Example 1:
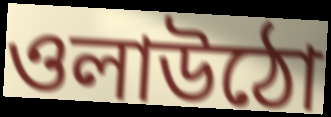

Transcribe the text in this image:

ওলাউঠো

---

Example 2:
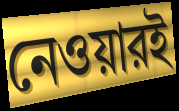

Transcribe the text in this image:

নেওয়ারই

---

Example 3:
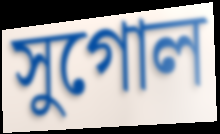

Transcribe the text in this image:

সুগোল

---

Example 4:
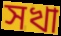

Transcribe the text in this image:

সখা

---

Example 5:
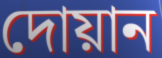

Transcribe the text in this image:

দোয়ান